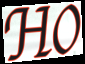
HO